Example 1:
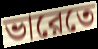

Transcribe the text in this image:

ভারেতে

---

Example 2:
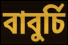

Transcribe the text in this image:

বাবুর্চি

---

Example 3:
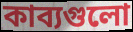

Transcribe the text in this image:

কাব্যগুলো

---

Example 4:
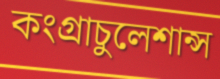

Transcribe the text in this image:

কংগ্রাচুলেশান্স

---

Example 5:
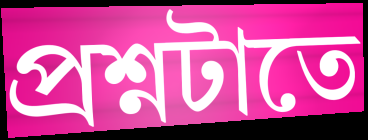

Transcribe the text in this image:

প্রশ্নটাতে